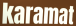
karamat